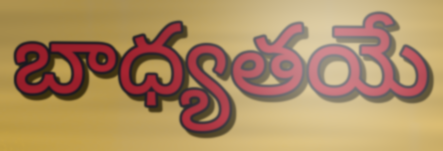
బాధ్యతయే